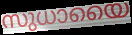
സുധായൈ